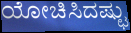
ಯೋಚಿಸಿದಷ್ಟು